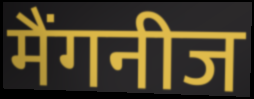
मैंगनीज